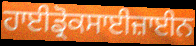
ਹਾਈਡ੍ਰੋਕਸਾਈਜ਼ਾਈਨ